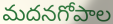
మదనగోపాల